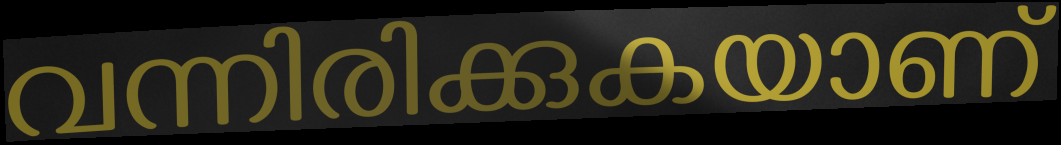
വന്നിരിക്കുകയാണ്